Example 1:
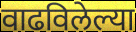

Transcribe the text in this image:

वाढविलेल्या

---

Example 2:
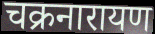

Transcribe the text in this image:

चक्रनारायण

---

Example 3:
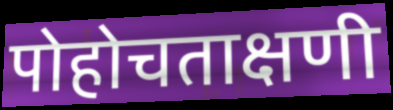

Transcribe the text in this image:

पोहोचताक्षणी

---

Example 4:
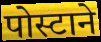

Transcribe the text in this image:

पोस्टाने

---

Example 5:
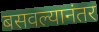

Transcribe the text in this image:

बसवल्यानंतर